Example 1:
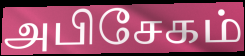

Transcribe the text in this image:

அபிசேகம்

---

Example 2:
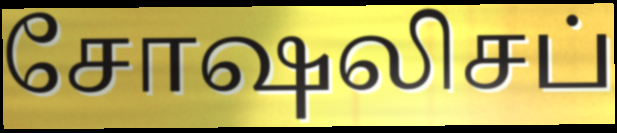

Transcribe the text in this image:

சோஷலிசப்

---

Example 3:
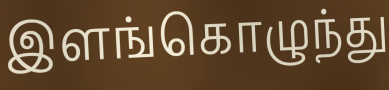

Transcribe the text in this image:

இளங்கொழுந்து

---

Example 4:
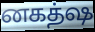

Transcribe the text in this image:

னகத்ஷ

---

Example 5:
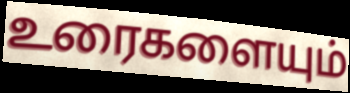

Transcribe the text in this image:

உரைகளையும்